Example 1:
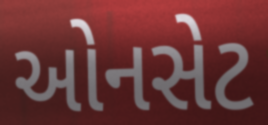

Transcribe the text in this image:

ઓનસેટ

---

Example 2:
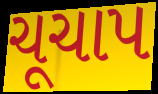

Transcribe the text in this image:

ચૂચાપ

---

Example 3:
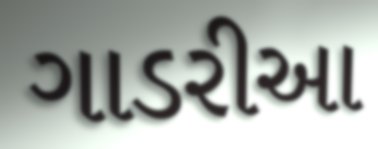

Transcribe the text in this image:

ગાડરીઆ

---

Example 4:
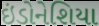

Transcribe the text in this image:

ઇંડોનેશિયા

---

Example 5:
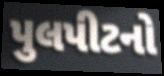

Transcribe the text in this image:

પુલપીટનો